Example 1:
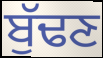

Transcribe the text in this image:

ਬੁੱਢਣ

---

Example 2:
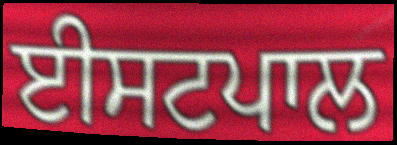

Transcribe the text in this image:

ਈਸਟਪਾਲ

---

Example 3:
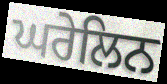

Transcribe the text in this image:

ਘਰੇਲਿਨ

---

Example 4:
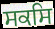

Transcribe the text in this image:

ਸਕਸਿ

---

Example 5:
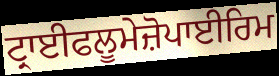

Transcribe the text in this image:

ਟ੍ਰਾਈਫਲੂਮੇਜ਼ੋਪਾਈਰਿਮ